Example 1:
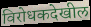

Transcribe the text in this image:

विरोधकदेखील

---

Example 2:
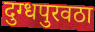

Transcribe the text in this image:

दुग्धपुरवठा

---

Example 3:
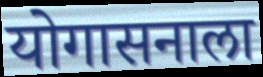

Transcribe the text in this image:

योगासनाला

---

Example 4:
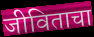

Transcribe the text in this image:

जीविताचा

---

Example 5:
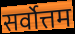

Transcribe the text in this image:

सर्वोत्तम